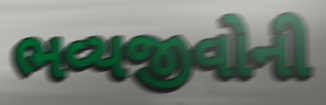
ભવ્યજીવોની